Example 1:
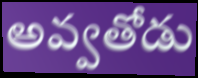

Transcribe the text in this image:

అవ్వతోడు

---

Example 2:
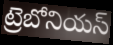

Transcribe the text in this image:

ట్రెబోనియస్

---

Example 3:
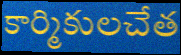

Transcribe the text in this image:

కార్మికులచేత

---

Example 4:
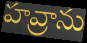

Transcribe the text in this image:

హవ్రాను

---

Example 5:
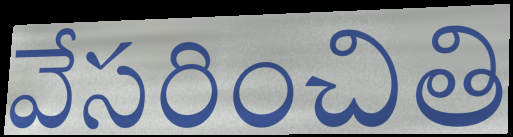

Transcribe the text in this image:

వేసరించితి